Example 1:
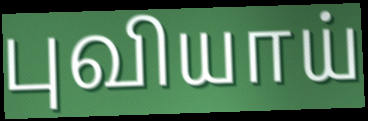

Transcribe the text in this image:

புவியாய்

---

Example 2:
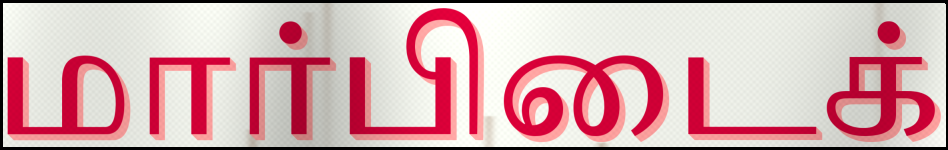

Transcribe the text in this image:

மார்பிடைக்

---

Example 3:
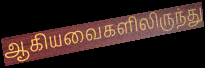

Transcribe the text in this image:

ஆகியவைகளிலிருந்து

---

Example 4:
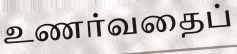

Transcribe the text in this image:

உணர்வதைப்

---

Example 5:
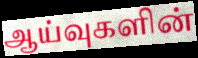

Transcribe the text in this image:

ஆய்வுகளின்